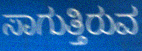
ಸಾಗುತ್ತಿರುವ